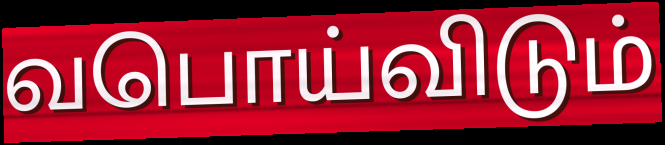
வபொய்விடும்